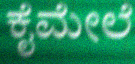
ಕೈಮೇಲೆ